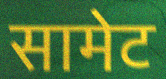
सामेट